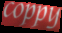
coppy